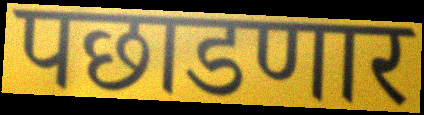
पछाडणार